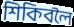
শিকিবলৈ